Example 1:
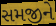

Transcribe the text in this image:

સમજીને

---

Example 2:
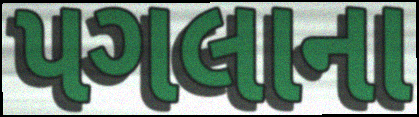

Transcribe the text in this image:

પગલાના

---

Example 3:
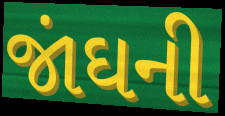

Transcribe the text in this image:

જાંઘની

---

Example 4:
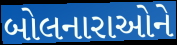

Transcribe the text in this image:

બોલનારાઓને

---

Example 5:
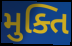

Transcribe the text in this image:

મુક્તિ